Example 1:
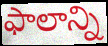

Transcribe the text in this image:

ఫాలాన్ని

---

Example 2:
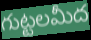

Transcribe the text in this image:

గుట్టలమీద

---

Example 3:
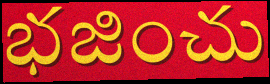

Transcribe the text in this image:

భజించు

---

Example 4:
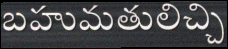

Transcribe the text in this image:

బహుమతులిచ్చి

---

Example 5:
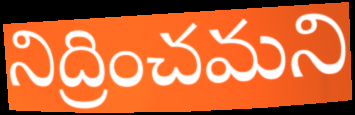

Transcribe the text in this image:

నిద్రించమని